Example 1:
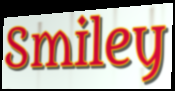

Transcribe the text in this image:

Smiley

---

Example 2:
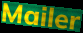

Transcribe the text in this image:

Mailer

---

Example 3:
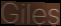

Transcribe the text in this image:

Giles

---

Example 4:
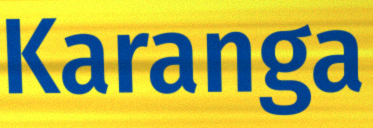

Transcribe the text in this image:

Karanga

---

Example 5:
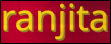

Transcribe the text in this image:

ranjita